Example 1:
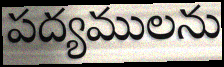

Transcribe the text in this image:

పద్యములను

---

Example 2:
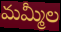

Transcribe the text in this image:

మమ్మీల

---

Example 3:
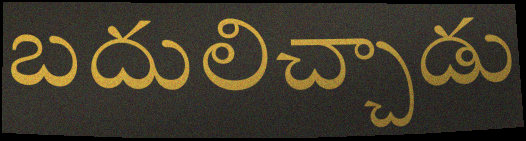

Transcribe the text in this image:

బదులిచ్చాడు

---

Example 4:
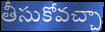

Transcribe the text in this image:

తీసుకోవచ్చా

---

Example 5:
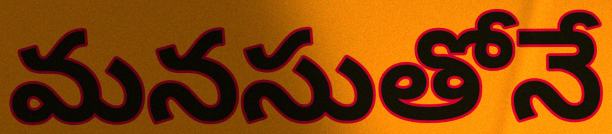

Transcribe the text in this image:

మనసుతోనే